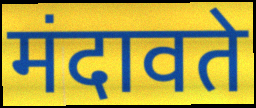
मंदावते